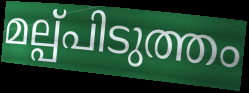
മല്പ്പിടുത്തം